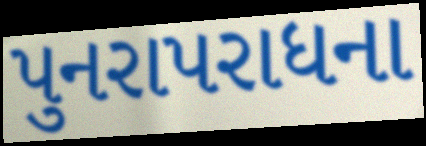
પુનરાપરાધના